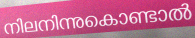
നിലനിന്നുകൊണ്ടാൽ